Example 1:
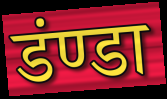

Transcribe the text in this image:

डंण्डा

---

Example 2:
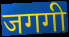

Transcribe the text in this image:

जगगी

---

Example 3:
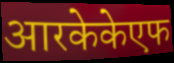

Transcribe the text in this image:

आरकेकेएफ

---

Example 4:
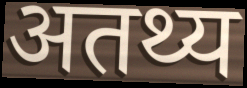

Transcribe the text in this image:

अतथ्य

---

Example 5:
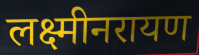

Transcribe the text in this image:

लक्ष्मीनरायण